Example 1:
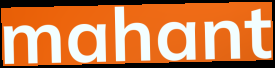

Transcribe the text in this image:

mahant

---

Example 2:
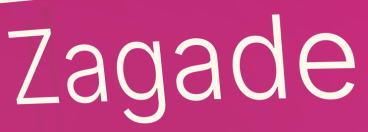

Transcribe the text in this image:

Zagade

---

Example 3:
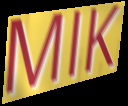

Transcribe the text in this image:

MIK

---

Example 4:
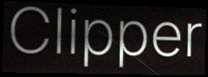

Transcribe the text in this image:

Clipper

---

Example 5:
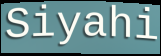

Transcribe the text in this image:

Siyahi